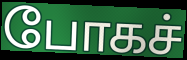
போகச்